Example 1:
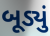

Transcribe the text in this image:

બૂડ્યું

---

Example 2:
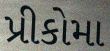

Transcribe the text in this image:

પ્રીકોમા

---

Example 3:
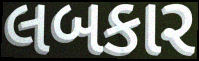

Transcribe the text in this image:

લબકાર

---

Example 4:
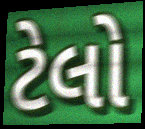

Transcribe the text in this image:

ટેલો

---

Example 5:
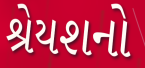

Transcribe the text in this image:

શ્રેયશનો